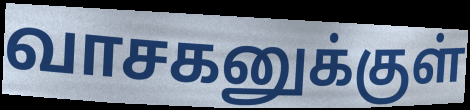
வாசகனுக்குள்